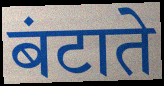
बंटाते